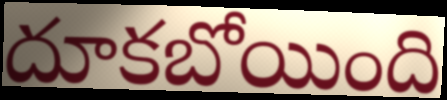
దూకబోయింది